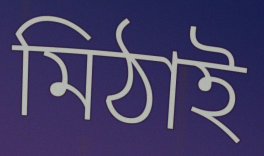
মিঠাই